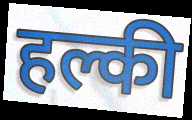
हल्की